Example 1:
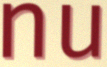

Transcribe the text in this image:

nu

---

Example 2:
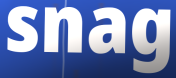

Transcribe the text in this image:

snag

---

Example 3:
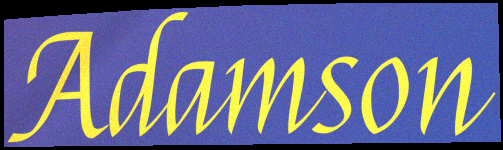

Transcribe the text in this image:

Adamson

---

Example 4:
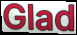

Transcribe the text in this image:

Glad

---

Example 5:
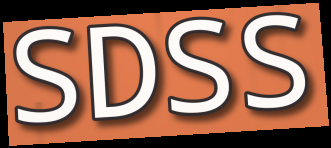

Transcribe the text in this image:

SDSS